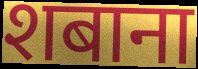
शबाना